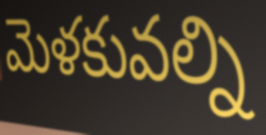
మెళకువల్ని